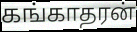
கங்காதரன்